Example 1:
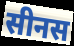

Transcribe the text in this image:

सीनस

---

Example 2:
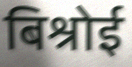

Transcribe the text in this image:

बिश्रोई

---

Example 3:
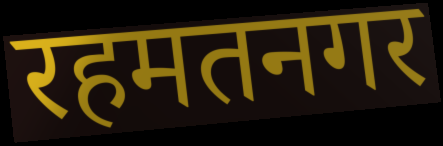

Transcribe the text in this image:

रहमतनगर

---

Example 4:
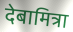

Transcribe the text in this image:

देबामित्रा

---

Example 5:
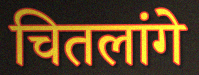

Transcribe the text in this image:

चितलांगे